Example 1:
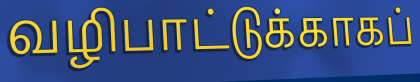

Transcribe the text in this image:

வழிபாட்டுக்காகப்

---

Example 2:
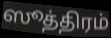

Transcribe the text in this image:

ஸூத்திரம்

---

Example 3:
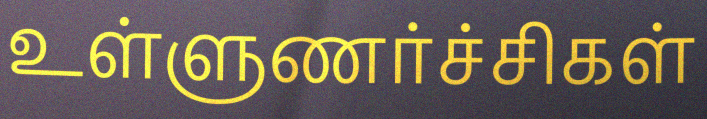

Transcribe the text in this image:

உள்ளுணர்ச்சிகள்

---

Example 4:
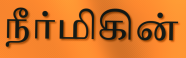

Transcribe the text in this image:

நீர்மிகின்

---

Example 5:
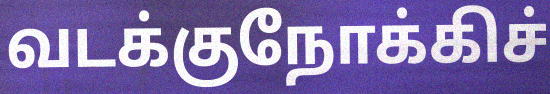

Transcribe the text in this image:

வடக்குநோக்கிச்